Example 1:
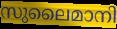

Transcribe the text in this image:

സുലൈമാനി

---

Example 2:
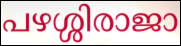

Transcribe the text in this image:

പഴശ്ശിരാജാ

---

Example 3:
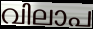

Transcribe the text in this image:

വിലാപ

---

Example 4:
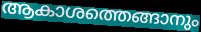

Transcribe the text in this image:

ആകാശത്തെങ്ങാനും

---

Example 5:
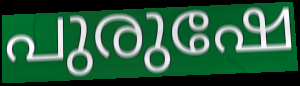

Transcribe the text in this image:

പുരുഷേ